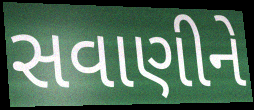
સવાણીને